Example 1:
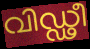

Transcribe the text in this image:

വിഡ്ഢീ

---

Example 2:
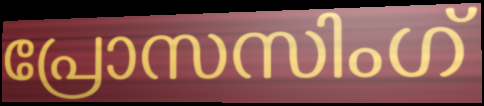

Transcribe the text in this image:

പ്രോസസിംഗ്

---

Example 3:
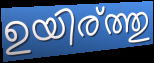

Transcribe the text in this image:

ഉയിര്ത്തു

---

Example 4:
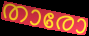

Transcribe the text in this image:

താരോ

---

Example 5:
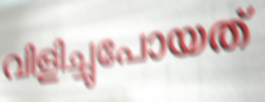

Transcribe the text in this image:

വിളിച്ചുപോയത്